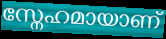
സ്നേഹമായാണ്